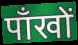
पाँखों